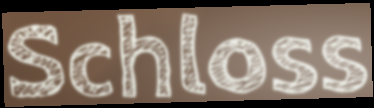
Schloss